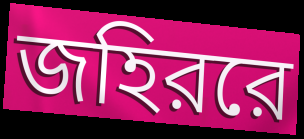
জহিররে